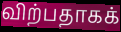
விற்பதாகக்